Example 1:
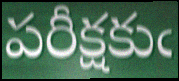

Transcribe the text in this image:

పరీక్షకుఁ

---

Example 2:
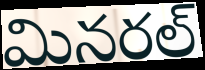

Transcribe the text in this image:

మినరల్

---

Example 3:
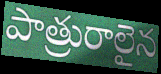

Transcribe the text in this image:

పాత్రురాలైన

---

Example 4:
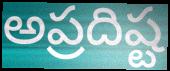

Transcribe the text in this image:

అప్రదిష్ట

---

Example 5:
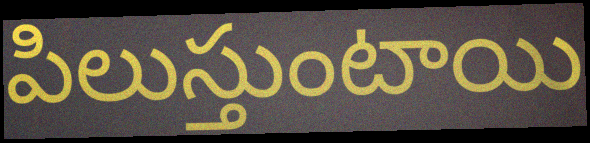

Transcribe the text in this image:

పిలుస్తుంటాయి